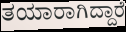
ತಯಾರಾಗಿದ್ದಾರೆ